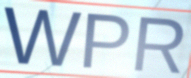
WPR